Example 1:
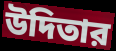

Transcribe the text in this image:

উদিতার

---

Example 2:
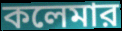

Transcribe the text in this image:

কলেমার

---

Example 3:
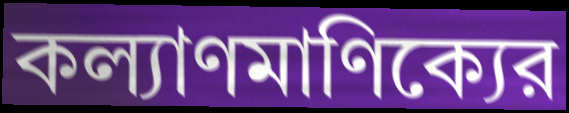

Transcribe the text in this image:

কল্যাণমাণিক্যের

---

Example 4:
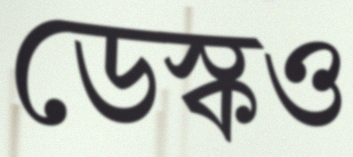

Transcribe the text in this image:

ডেস্কও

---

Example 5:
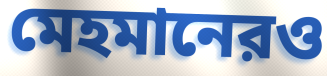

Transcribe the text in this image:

মেহমানেরও